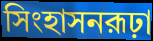
সিংহাসনরূঢ়া